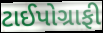
ટાઈપોગ્રાફી